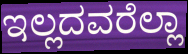
ಇಲ್ಲದವರೆಲ್ಲಾ